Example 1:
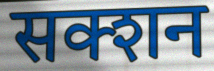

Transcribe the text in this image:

सक्शन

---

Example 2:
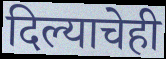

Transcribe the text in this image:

दिल्याचेही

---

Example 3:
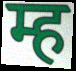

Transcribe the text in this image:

म्ह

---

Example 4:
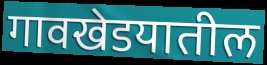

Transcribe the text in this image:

गावखेडयातील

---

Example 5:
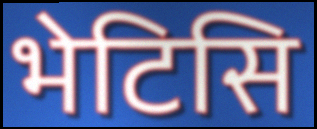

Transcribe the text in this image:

भेटिसि